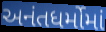
અનંતધર્મોમાં